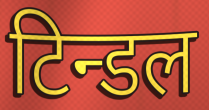
टिन्डल